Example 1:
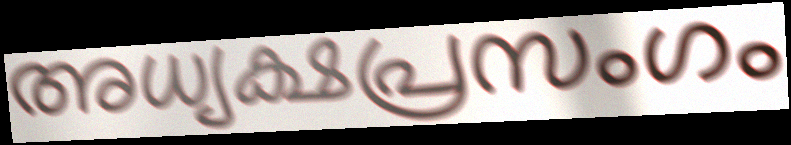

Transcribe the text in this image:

അധ്യക്ഷപ്രസംഗം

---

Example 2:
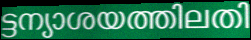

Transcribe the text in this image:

ട്ടന്യാശയത്തിലതി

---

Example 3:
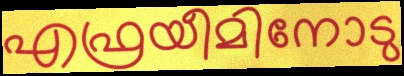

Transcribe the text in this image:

എഫ്രയീമിനോടു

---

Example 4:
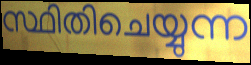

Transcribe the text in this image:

സ്ഥിതിചെയ്യുന്ന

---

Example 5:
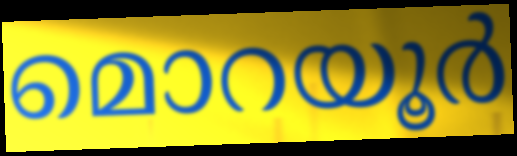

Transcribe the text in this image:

മൊറയൂർ